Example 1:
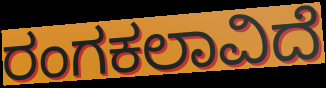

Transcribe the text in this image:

ರಂಗಕಲಾವಿದೆ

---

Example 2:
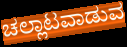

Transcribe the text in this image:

ಚಲ್ಲಾಟವಾಡುವ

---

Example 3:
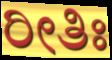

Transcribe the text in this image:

ರೀತಿಃ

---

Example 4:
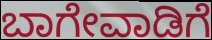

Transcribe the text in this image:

ಬಾಗೇವಾಡಿಗೆ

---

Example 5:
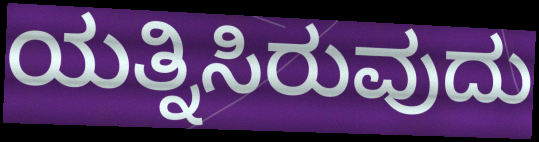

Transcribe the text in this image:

ಯತ್ನಿಸಿರುವುದು